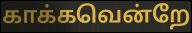
காக்கவென்றே